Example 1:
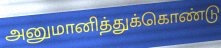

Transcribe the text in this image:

அனுமானித்துக்கொண்டு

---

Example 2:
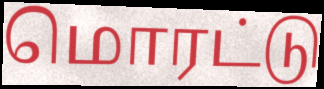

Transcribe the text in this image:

மொரட்டு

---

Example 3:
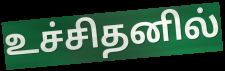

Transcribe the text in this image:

உச்சிதனில்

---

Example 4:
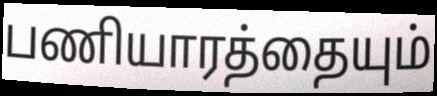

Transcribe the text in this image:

பணியாரத்தையும்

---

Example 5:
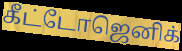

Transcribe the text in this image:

கீட்டோஜெனிக்